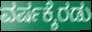
ವರ್ಷಕ್ಕೆರಡು